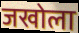
जखोला